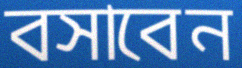
বসাবেন